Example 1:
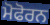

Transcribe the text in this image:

ਮੋਫੋਰਨ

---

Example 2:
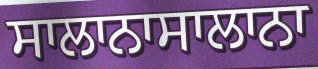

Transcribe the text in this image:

ਸਾਲਾਨਾਸਾਲਾਨਾ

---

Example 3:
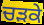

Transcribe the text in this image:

ਚੜਕੇ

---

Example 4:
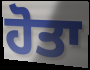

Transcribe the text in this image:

ਹੋਤਾ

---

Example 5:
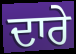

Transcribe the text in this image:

ਦਾਰੇ